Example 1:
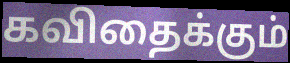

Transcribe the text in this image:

கவிதைக்கும்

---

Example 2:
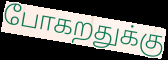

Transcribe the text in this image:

போகறதுக்கு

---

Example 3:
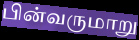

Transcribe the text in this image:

பின்வருமாறு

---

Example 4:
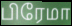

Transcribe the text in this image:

பிரேமா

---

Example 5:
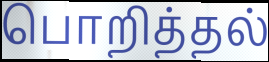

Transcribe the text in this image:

பொறித்தல்